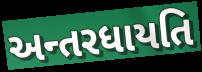
અન્તરધાયતિ